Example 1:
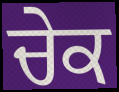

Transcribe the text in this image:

ਚੇਕ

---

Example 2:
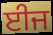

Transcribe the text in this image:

ਈਜ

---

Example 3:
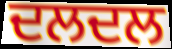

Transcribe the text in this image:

ਦਲਦਲ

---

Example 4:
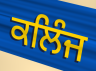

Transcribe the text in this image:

ਕਲਿੰਜ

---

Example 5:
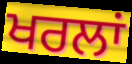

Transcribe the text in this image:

ਖਰਲਾਂ